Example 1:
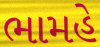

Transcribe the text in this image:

ભામહે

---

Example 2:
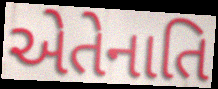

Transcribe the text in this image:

એતેનાતિ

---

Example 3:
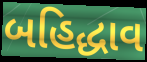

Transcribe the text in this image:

બહિદ્ધાવ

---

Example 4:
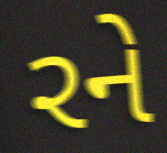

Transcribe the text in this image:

રને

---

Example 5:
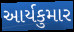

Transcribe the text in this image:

આર્યકુમાર